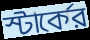
স্টার্কের